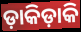
ଡ଼ାକିଡ଼ାକି